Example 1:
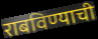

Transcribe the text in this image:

राबविण्याची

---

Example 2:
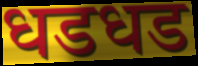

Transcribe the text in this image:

धडधड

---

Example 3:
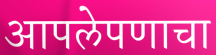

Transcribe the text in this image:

आपलेपणाचा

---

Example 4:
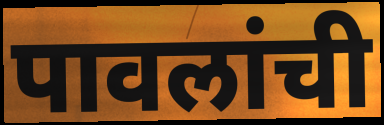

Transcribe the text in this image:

पावलांची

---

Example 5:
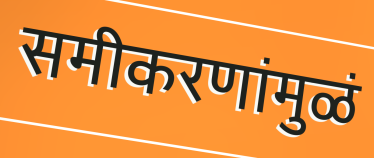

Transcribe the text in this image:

समीकरणांमुळं